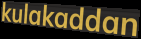
kulakaddan